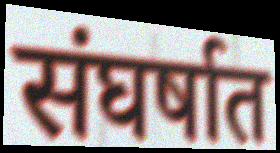
संघर्षात